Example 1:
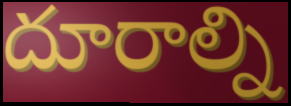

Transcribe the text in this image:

దూరాల్ని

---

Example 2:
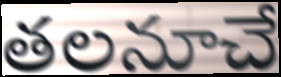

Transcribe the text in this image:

తలనూచే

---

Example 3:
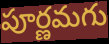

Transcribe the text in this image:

పూర్ణమగు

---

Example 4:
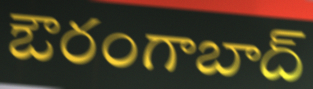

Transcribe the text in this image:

ఔరంగాబాద్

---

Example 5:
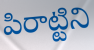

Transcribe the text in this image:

పిరాట్టిని